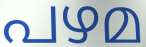
പഴമ